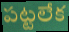
పట్టలేక